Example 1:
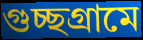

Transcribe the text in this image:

গুচ্ছগ্রামে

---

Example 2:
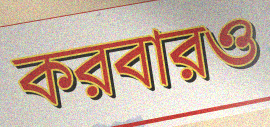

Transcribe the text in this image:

করবারও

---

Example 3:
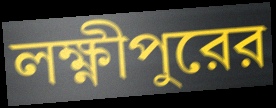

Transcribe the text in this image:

লক্ষ্ণীপুরের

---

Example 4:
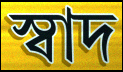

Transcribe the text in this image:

স্বাদ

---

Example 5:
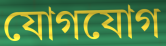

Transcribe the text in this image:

যোগযোগ